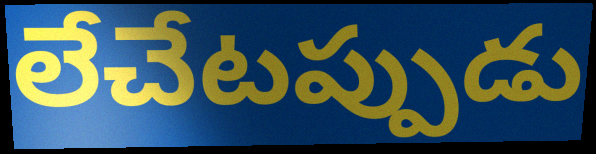
లేచేటప్పుడు